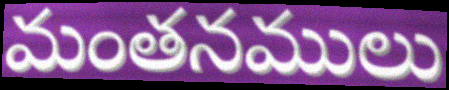
మంతనములు